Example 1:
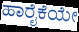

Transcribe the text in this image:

ಹಾರೈಕೆಯೇ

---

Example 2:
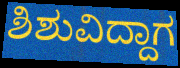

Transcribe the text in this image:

ಶಿಶುವಿದ್ದಾಗ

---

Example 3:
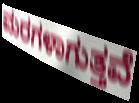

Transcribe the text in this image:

ಮರಗಳಾಗುತ್ತವೆ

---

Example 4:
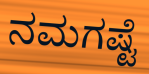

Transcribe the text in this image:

ನಮಗಷ್ಟೆ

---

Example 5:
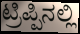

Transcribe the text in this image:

ಟ್ರಿಪ್ಪಿನಲ್ಲಿ